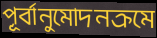
পূর্বানুমোদনক্রমে